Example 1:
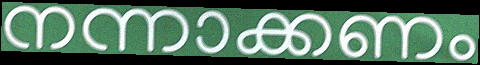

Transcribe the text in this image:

നന്നാക്കണം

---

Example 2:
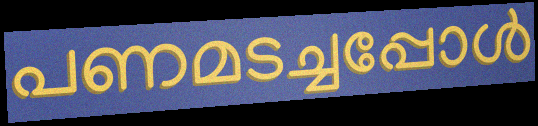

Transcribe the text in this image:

പണമടച്ചപ്പോൾ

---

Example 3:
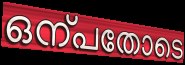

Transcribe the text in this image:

ഒന്പതോടെ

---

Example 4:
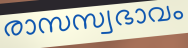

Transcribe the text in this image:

രാസസ്വഭാവം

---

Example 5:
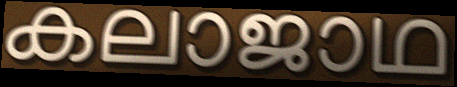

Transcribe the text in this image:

കലാജാഥ